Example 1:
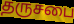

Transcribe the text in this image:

தருசபை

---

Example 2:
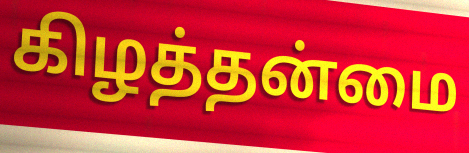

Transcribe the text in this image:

கிழத்தன்மை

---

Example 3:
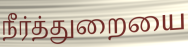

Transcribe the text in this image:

நீர்த்துறையை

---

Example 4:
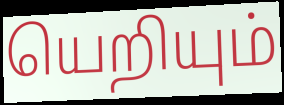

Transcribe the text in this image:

யெறியும்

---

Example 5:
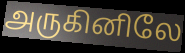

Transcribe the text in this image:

அருகினிலே